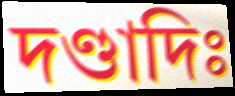
দণ্ডাদিঃ